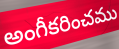
అంగీకరించము